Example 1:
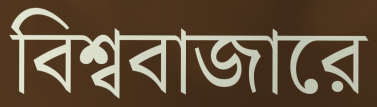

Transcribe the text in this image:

বিশ্ববাজারে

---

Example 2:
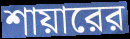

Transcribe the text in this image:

শায়ারের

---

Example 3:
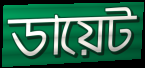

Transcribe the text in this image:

ডায়েট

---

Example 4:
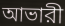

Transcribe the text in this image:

আভারী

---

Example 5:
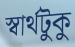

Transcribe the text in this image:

স্বার্থটুকু